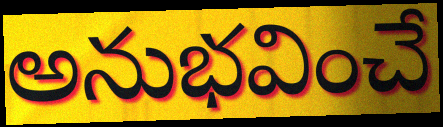
అనుభవించే